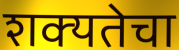
शक्‍यतेचा